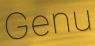
Genu